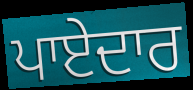
ਪਾਏਦਾਰ